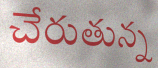
చేరుతున్న